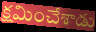
క్షమించేశాడు